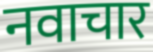
नवाचार